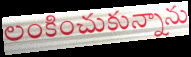
లంకించుకున్నాను